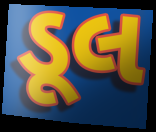
ડૂલ